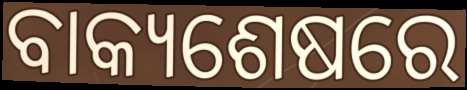
ବାକ୍ୟଶେଷରେ